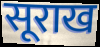
सूराख